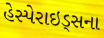
હેસ્પેરાઇડ્સના